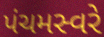
પંચમસ્વરે